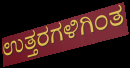
ಉತ್ತರಗಳಿಗಿಂತ